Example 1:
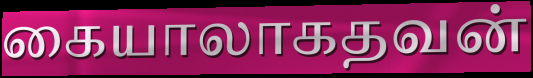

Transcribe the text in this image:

கையாலாகதவன்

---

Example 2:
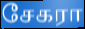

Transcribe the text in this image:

சேகரா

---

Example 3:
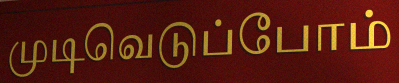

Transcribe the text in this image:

முடிவெடுப்போம்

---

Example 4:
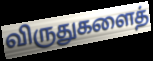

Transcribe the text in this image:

விருதுகளைத்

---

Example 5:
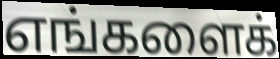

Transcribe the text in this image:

எங்களைக்